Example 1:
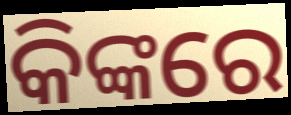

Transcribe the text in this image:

କିଙ୍କରେ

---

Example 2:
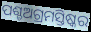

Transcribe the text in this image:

ପଶ୍ଚଅଗ୍ରମସ୍ତିଷ୍କର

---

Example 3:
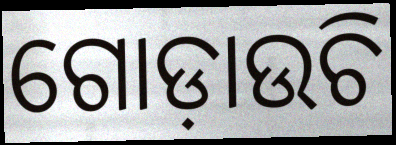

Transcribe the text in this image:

ଗୋଡ଼ାଉଚି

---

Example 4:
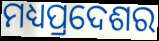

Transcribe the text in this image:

ମଧ୍ଯପ୍ରଦେଶର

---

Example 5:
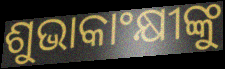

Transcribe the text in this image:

ଶୁଭାକାଂକ୍ଷୀଙ୍କୁ